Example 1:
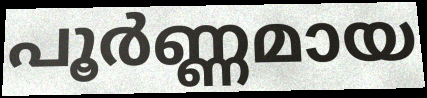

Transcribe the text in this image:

പൂർണ്ണമായ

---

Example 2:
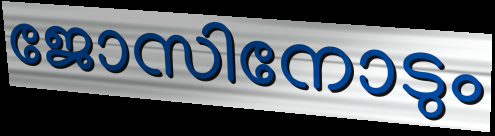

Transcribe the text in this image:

ജോസിനോടും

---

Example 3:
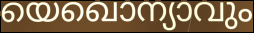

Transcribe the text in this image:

യെഖൊന്യാവും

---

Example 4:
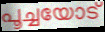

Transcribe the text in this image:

പൂച്ചയോട്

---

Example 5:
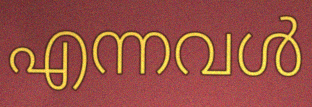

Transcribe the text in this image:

എന്നവൾ